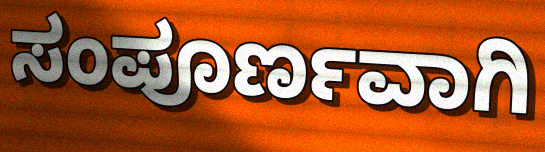
ಸಂಪೂರ್ಣವಾಗಿ